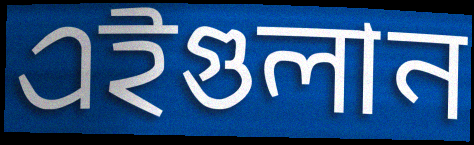
এইগুলান